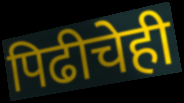
पिढीचेही